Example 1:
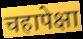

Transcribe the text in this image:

चहापेक्षा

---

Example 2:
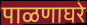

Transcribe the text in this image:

पाळणाघरे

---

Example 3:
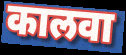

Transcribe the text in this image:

कालवा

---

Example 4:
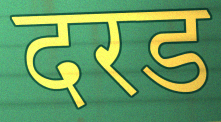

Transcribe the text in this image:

दरड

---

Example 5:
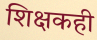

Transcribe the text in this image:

शिक्षकही